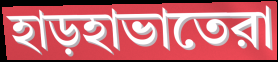
হাড়হাভাতেরা